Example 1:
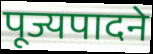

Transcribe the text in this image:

पूज्यपादने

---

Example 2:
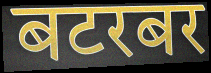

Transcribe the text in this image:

बटरबर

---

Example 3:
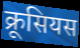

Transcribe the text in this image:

क्रूसियस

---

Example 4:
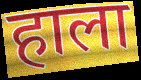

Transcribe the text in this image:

हाला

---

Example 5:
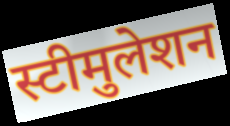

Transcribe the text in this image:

स्टीमुलेशन